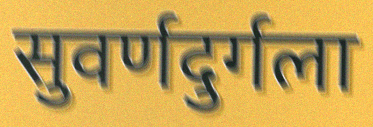
सुवर्णदुर्गला